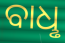
ବାଧୢ